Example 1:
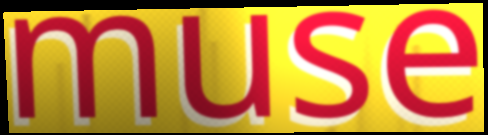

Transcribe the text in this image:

muse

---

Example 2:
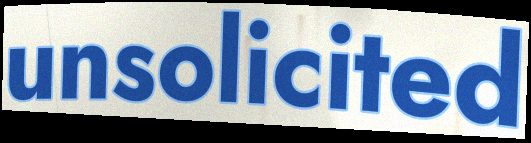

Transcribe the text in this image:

unsolicited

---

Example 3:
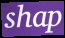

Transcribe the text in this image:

shap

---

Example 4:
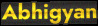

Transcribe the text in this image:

Abhigyan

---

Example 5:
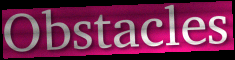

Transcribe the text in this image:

Obstacles